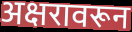
अक्षरावरून